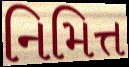
નિમિત્ત